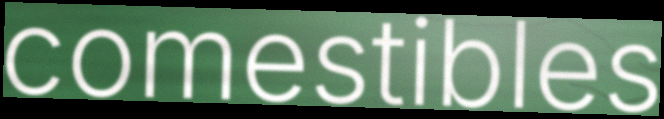
comestibles